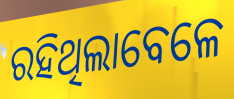
ରହିଥିଲାବେଳେ